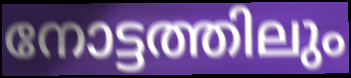
നോട്ടത്തിലും